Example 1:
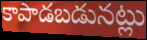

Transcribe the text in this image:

కాపాడబడునట్లు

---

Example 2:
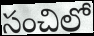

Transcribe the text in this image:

సంచిలో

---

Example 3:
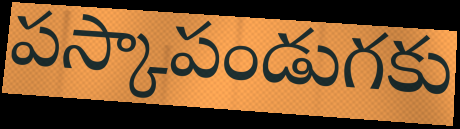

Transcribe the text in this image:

పస్కాపండుగకు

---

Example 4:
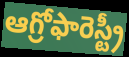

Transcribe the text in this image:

ఆగ్రోఫారెస్ట్రీ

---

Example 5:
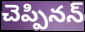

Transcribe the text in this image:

చెప్పినన్